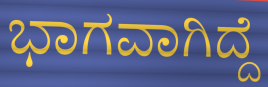
ಭಾಗವಾಗಿದ್ದೆ